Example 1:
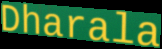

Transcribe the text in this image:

Dharala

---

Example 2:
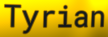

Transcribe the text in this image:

Tyrian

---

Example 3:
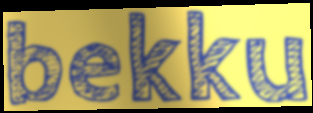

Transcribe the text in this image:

bekku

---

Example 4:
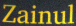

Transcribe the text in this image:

Zainul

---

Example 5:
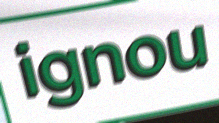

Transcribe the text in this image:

ignou